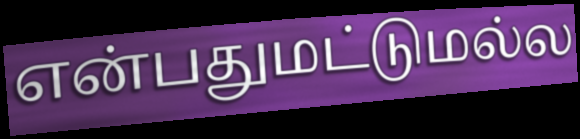
என்பதுமட்டுமல்ல